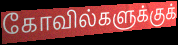
கோவில்களுக்குக்